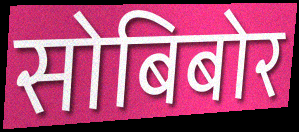
सोबिबोर